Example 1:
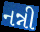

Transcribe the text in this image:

નન્ની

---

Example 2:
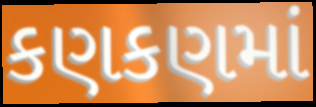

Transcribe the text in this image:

કણકણમાં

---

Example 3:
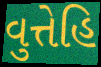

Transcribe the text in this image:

વુત્તેહિ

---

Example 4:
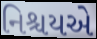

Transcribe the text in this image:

નિશ્ચયએ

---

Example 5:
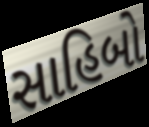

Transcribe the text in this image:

સાહિબો